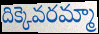
దిక్కెవరమ్మా